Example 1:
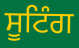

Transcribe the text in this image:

ਸੂਟਿੰਗ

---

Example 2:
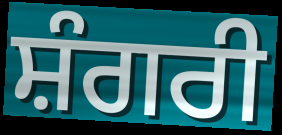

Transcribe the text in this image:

ਸ਼ੰਗਰੀ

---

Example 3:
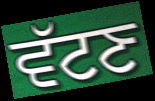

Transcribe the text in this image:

ਵੱਟਣ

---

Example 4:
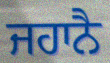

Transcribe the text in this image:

ਜਹਾਨੈ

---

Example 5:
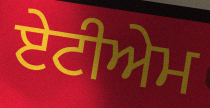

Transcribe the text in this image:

ਏਟੀਅੇਮ